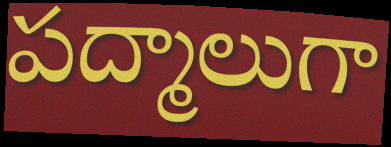
పద్మాలుగా